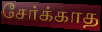
சேர்க்காத